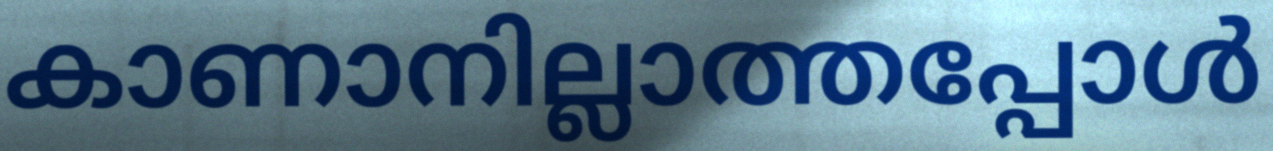
കാണാനില്ലാത്തപ്പോൾ